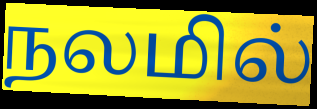
நலமில்